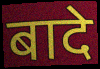
बादे